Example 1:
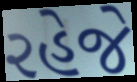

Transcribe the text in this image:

રહેજે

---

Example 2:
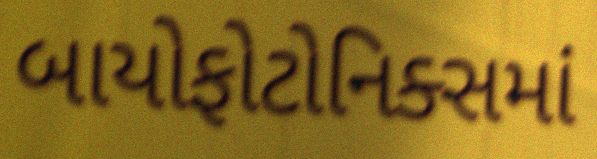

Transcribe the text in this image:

બાયોફોટોનિક્સમાં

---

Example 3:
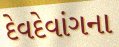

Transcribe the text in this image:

દેવદેવાંગના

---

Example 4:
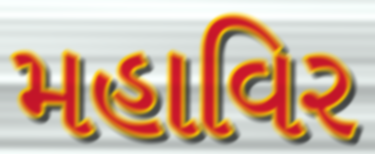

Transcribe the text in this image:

મહાવિર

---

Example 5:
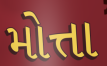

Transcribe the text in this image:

મોત્તા